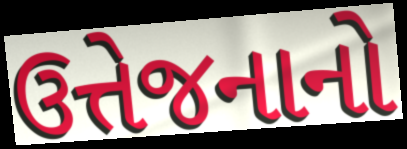
ઉત્તેજનાનો